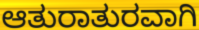
ಆತುರಾತುರವಾಗಿ